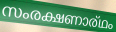
സംരക്ഷണാര്ഥം